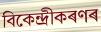
বিকেন্দ্ৰীকৰণৰ